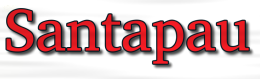
Santapau